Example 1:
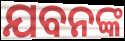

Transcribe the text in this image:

ଯବନଙ୍କ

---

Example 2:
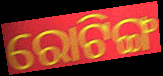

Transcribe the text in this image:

ରୋଟିଙ୍ଗ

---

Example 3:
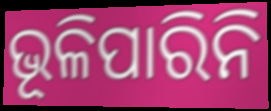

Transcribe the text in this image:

ଭୂଳିପାରିନି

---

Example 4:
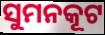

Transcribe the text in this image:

ସୁମନକୂଟ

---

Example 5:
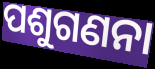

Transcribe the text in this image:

ପଶୁଗଣନା